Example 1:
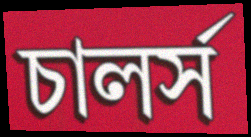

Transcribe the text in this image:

চালর্স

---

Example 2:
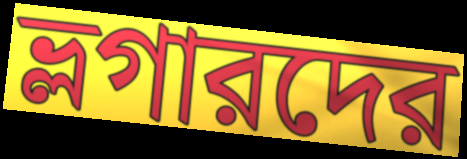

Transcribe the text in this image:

ভ্লগারদের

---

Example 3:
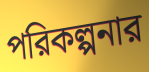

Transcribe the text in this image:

পরিকল্পনার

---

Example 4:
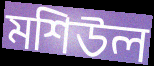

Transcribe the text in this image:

মশিউল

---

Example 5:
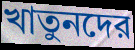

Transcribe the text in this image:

খাতুনদের